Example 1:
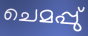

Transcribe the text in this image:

ചെമപ്പു്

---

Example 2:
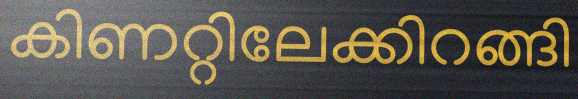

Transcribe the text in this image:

കിണറ്റിലേക്കിറങ്ങി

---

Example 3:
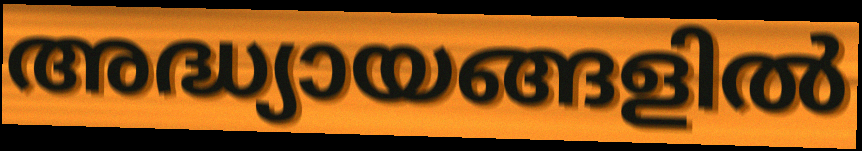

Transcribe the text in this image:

അദ്ധ്യായങ്ങളിൽ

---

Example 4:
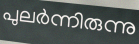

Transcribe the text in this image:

പുലർന്നിരുന്നു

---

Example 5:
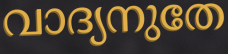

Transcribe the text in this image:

വാദ്യനുതേ